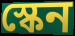
স্কেন